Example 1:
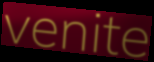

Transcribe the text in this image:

venite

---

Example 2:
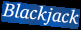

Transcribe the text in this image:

Blackjack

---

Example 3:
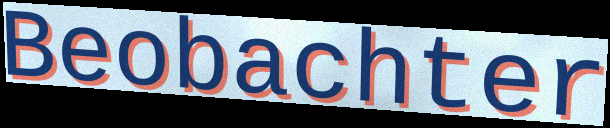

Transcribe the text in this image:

Beobachter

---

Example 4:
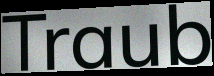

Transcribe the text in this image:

Traub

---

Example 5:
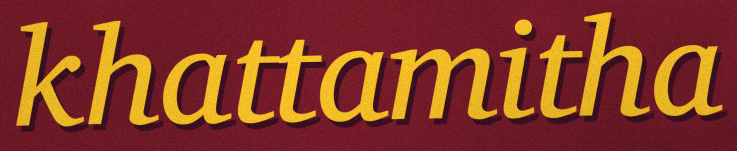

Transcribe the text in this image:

khattamitha